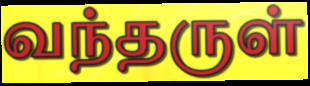
வந்தருள்